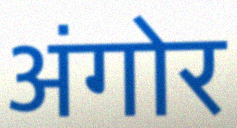
अंगोर